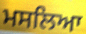
ਮਸਲਿਆ